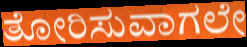
ತೋರಿಸುವಾಗಲೇ